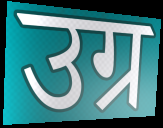
उग्र